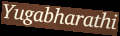
Yugabharathi